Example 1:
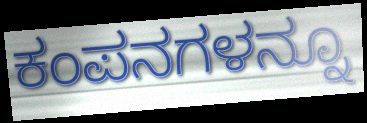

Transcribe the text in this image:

ಕಂಪನಗಳನ್ನೂ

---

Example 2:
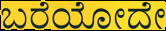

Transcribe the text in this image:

ಬರೆಯೋದೇ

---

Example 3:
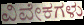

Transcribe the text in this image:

ವಿವೇಕಗಳು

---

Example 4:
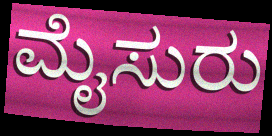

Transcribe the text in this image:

ಮೈಸುರು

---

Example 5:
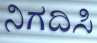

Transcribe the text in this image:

ನಿಗದಿಸಿ